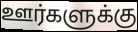
ஊர்களுக்கு